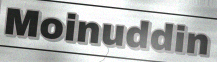
Moinuddin